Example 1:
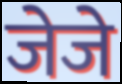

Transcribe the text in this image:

जेजे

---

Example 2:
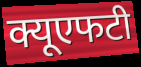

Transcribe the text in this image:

क्यूएफटी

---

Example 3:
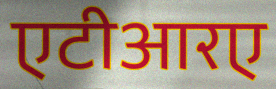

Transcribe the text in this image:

एटीआरए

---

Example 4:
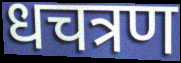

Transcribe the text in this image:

धचत्रण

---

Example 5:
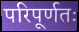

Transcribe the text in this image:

परिपूर्णतः